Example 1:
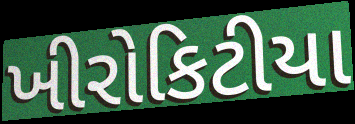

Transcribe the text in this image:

ખીરોકિટીયા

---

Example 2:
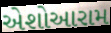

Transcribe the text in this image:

એશોઆરામ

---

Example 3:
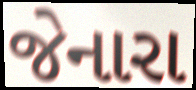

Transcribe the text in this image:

જેનારા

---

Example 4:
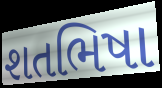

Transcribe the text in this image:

શતભિષા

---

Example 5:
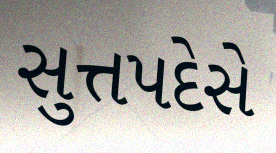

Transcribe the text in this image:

સુત્તપદેસે